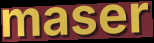
maser